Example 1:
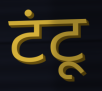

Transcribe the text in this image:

टंटू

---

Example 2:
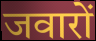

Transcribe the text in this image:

जवारों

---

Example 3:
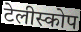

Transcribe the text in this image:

टेलीस्‍कोप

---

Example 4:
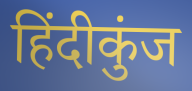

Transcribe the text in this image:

हिंदीकुंज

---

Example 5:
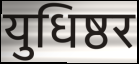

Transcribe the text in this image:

युधिष्ठर